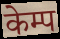
केम्प